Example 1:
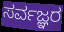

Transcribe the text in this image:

ಸರ್ವಜ್ಞರ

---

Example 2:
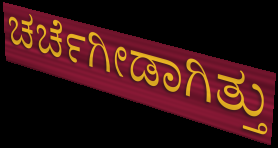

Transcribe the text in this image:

ಚರ್ಚೆಗೀಡಾಗಿತ್ತು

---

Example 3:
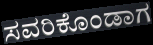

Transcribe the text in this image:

ಸವರಿಕೊಂಡಾಗ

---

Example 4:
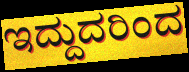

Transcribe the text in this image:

ಇದ್ದುದರಿಂದ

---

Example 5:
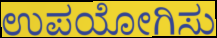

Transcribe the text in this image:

ಉಪಯೋಗಿಸು